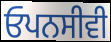
ਓਪਨਸੀਵੀ